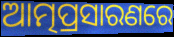
ଆତ୍ମପ୍ରସାରଣରେ